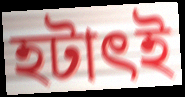
হটাৎই